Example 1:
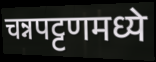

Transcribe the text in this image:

चन्नपट्टणमध्ये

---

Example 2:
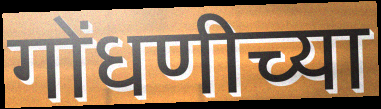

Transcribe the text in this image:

गोंधणीच्या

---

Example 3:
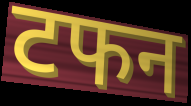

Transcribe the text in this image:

टफन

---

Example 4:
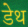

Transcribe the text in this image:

डेथ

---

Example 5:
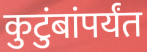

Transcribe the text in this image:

कुटुंबांपर्यंत